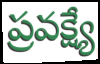
ప్రవక్ష్యే